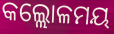
କଲ୍ଲୋଳମୟ